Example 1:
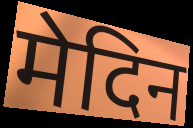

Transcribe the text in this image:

मेदिन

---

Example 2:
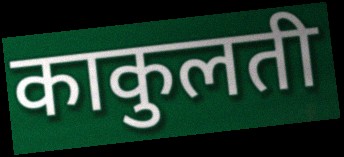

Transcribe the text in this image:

काकुलती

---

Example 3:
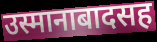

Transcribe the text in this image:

उस्मानाबादसह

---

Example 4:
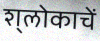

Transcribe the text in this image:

श्लोकाचें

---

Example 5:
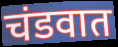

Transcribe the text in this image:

चंडवात